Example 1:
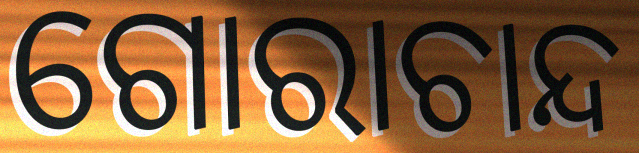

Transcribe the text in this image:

ଗୋରାଚାନ୍ଦ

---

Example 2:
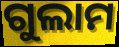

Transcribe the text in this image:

ଗୁଲାମ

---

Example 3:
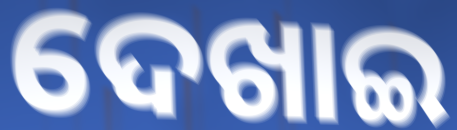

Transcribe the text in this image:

ଦେଖାଇ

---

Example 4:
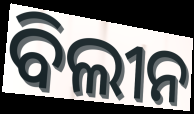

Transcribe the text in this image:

ବିଲୀନ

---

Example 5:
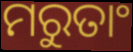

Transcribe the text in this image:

ମରୁତାଂ